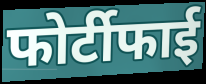
फोर्टीफाई